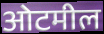
ओटमील